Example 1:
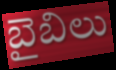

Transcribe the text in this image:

బైబిలు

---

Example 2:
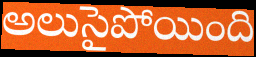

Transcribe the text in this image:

అలుసైపోయింది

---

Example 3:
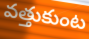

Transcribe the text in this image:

వత్తుకుంట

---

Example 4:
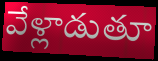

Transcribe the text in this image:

వేళ్లాడుతూ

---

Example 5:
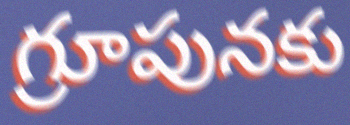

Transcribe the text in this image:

గ్రూపునకు